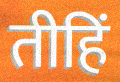
तीहिं